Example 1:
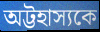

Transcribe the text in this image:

অট্টহাস্যকে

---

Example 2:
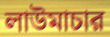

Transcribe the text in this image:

লাউমাচার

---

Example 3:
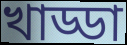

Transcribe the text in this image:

খাড্ডা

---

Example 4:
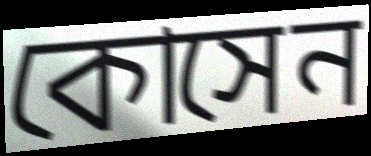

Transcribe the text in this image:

কোসেন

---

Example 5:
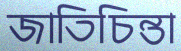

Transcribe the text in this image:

জাতিচিন্তা